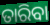
ତାରିବା